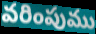
వరింపుము